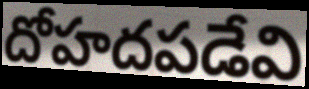
దోహదపడేవి